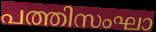
പത്തിസംഘാ